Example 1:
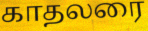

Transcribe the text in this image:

காதலரை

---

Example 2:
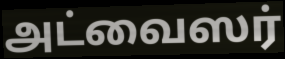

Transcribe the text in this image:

அட்வைஸர்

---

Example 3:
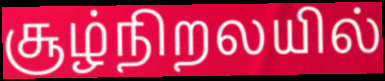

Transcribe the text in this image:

சூழ்நிறலயில்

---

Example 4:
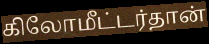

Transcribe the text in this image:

கிலோமீட்டர்தான்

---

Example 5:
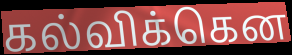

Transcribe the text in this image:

கல்விக்கென